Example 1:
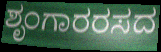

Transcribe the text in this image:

ಶೃಂಗಾರರಸದ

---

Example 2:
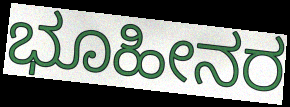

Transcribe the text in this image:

ಭೂಹೀನರ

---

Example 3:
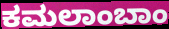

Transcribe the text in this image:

ಕಮಲಾಂಬಾಂ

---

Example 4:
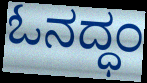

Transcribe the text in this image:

ಓನದ್ಧಂ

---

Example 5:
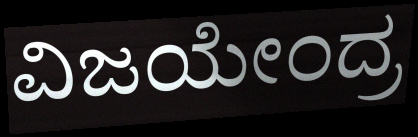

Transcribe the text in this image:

ವಿಜಯೇಂದ್ರ